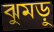
ঝুমড়ু